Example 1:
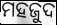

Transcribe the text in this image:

ମହଜୁଦ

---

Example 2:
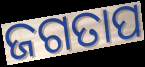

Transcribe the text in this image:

ଜଗତାପ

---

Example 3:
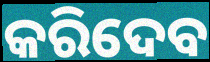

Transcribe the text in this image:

କରିଦେବ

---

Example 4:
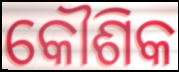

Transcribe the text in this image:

କୌଶିକ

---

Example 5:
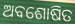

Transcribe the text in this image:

ଅବଶୋଷିତ